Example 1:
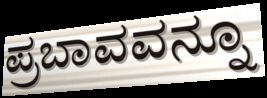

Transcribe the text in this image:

ಪ್ರಬಾವವನ್ನೂ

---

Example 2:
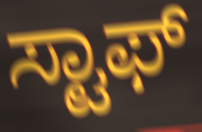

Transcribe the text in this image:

ಸ್ಟಾಫ್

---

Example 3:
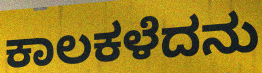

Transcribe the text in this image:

ಕಾಲಕಳೆದನು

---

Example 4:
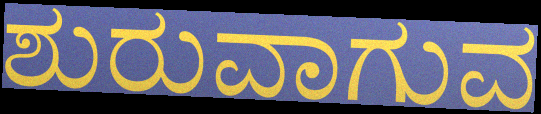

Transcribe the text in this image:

ಶುರುವಾಗುವ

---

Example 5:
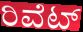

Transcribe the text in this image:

ರಿವೆಟ್